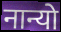
नान्यो